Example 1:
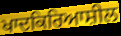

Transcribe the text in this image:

ਖਾਦਕਿਰਿਆਸ਼ੀਲ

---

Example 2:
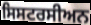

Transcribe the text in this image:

ਸਿਸਟਰਸੀਅਨ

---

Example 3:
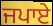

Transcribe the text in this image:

ਜਪਾਏ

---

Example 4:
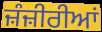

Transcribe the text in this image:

ਜ਼ੰਜ਼ੀਰੀਆਂ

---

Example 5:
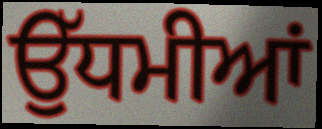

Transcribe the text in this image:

ਉੱਧਮੀਆਂ